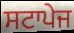
ਸਟਾਪੇਜ